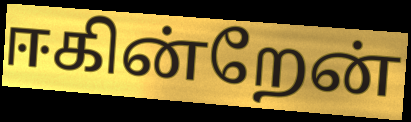
ஈகின்றேன்